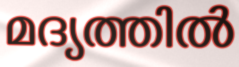
മദ്യത്തിൽ